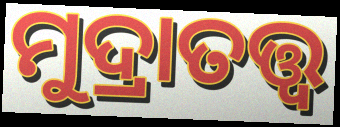
ମୁଦ୍ରାତତ୍ତ୍ବ